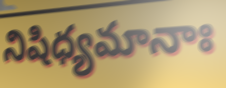
నిషిధ్యమానాః